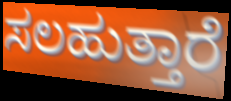
ಸಲಹುತ್ತಾರೆ